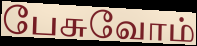
பேசுவோம்